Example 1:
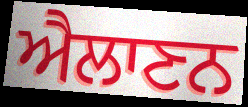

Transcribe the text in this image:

ਐਲਾਣਨ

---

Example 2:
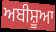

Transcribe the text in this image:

ਅਬੀਸ਼ੂਆ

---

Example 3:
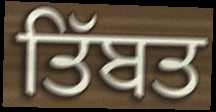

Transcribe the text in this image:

ਤਿੱਬਤ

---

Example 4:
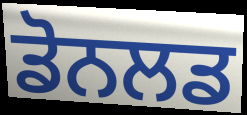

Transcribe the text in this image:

ਡੋਨਲਡ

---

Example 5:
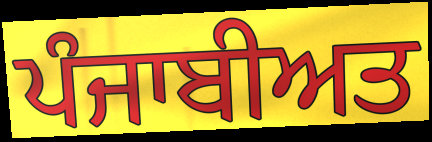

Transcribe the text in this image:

ਪੰਜਾਬੀਅਤ